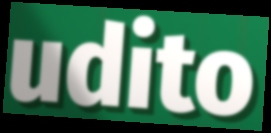
udito